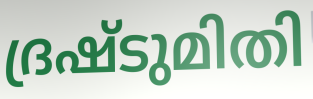
ദ്രഷ്ടുമിതി